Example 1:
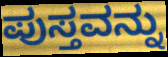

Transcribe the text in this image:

ಪುಸ್ತವನ್ನು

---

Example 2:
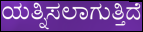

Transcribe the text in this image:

ಯತ್ನಿಸಲಾಗುತ್ತಿದೆ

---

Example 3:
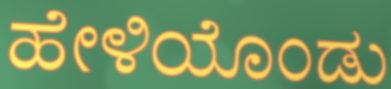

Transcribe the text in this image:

ಹೇಳಿಯೊಂಡು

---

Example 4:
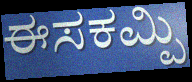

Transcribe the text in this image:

ಈಸಕಮ್ಪಿ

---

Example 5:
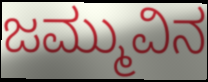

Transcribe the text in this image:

ಜಮ್ಮುವಿನ